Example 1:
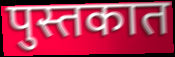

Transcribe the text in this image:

पुस्तकात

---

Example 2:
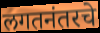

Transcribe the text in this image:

लगतनंतरचे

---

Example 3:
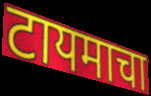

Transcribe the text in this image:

टायमाचा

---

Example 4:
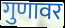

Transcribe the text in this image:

गुणावर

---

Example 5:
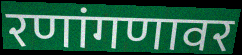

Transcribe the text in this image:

रणांगणावर